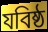
যবিষ্ঠ